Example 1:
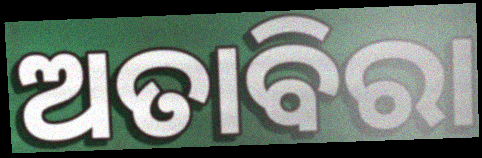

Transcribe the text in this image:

ଅତାବିରା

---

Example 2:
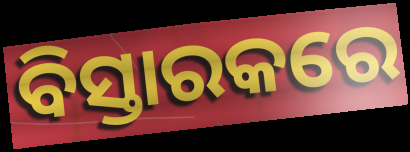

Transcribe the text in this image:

ବିସ୍ତାରକରେ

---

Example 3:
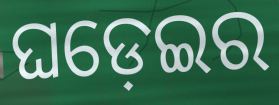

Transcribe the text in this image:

ଘଡ଼େଇର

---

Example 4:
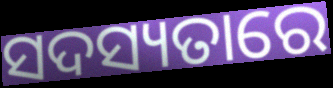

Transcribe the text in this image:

ସଦସ୍ୟତାରେ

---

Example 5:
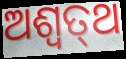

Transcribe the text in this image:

ଅଶ୍ଵତ୍‍ଥ